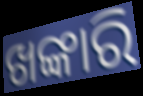
ଖଙ୍କାରି